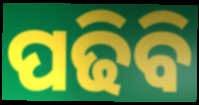
ପଢିବି